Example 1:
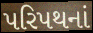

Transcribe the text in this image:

પરિપથનાં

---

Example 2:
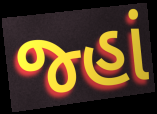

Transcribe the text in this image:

જ્હાં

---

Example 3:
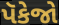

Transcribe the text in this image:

પૅકેજો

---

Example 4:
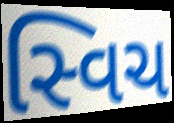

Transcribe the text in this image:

સ્વિચ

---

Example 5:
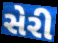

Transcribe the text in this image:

સેરી